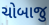
ચોબાજુ